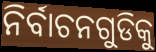
ନିର୍ବାଚନଗୁଡିକୁ